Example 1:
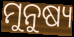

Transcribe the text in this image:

ମୁନୁଷ୍ୟ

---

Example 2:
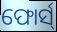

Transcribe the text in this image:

ଫୋର୍ସ୍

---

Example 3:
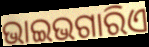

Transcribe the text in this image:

ଭାଇଭଗାରିଏ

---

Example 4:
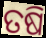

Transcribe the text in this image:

ତଷି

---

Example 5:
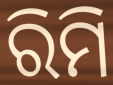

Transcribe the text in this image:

ରିମି